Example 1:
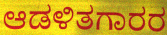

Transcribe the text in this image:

ಆಡಳಿತಗಾರರ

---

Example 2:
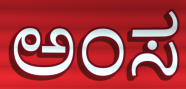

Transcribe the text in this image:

ಅಂಸ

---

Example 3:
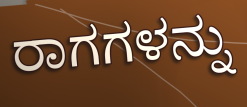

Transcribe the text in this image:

ರಾಗಗಳನ್ನು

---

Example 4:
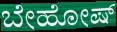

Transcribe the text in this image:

ಬೇಹೋಷ್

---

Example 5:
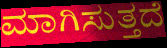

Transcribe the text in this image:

ಮಾಗಿಸುತ್ತದೆ